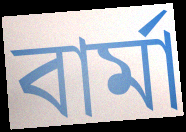
বার্মা